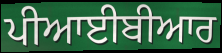
ਪੀਆਈਬੀਆਰ